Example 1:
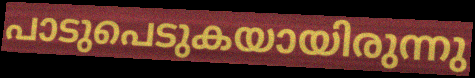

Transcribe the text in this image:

പാടുപെടുകയായിരുന്നു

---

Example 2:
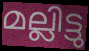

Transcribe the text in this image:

മല്ലിട്ടു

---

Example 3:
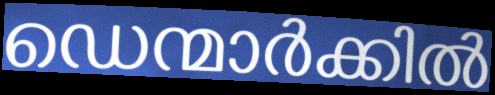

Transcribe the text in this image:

ഡെന്മാർക്കിൽ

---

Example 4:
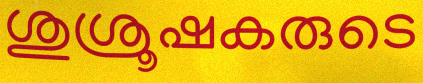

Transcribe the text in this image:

ശുശ്രൂഷകരുടെ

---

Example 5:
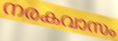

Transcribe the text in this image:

നരകവാസം